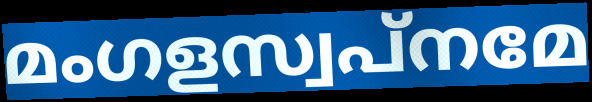
മംഗളസ്വപ്നമേ